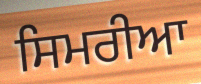
ਸਿਮਰੀਆ